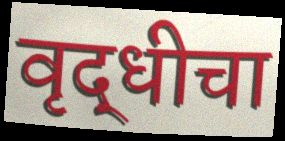
वृद्धीचा